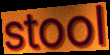
stool